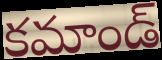
కమాండ్